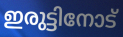
ഇരുട്ടിനോട്